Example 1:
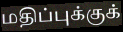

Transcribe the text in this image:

மதிப்புக்குக்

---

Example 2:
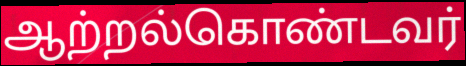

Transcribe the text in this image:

ஆற்றல்கொண்டவர்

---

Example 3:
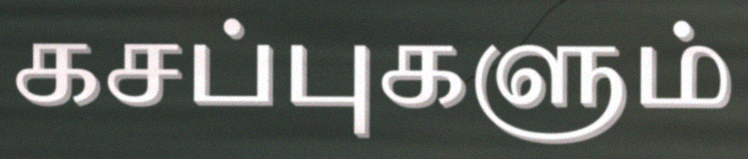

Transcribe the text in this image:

கசப்புகளும்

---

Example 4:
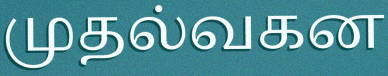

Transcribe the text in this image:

முதல்வகன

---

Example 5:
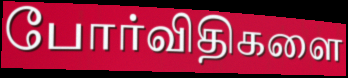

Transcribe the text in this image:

போர்விதிகளை